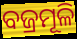
ବଜ୍ରମୂଳି